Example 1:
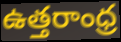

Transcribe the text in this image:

ఉత్తరాంధ్ర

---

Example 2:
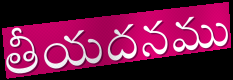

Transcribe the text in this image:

తీయదనము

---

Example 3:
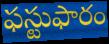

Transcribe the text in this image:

ఫస్టుఫారం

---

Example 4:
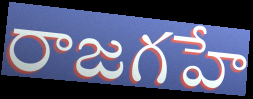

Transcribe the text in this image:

రాజగహే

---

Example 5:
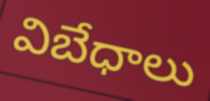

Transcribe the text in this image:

విబేధాలు